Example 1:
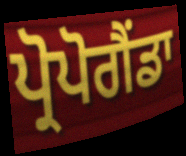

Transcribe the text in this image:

ਪ੍ਰੋਪੋਗੈਂਡਾ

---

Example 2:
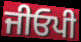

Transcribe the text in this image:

ਜੀਓਪੀ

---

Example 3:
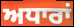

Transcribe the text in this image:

ਅਧਾਰਾਂ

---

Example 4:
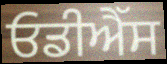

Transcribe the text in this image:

ਓਡੀਐੱਸ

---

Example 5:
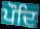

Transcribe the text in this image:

ਪੌਦਿ